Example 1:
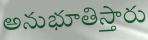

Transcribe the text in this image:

అనుభూతిస్తారు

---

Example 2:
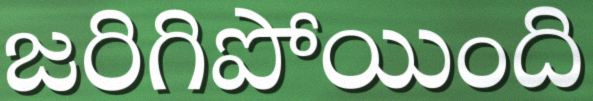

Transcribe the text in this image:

జరిగిపోయింది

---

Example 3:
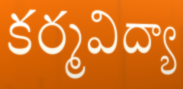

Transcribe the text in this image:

కర్మవిద్యా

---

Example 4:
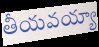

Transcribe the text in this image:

తీయవయ్యా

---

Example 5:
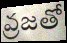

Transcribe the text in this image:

వ్రజతో